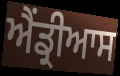
ਐਂਡ੍ਰੀਆਸ